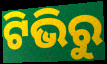
ଟିଭିରୁ